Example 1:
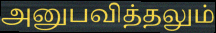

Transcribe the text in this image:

அனுபவித்தலும்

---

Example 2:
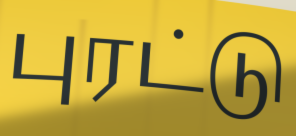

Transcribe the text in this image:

புரட்டு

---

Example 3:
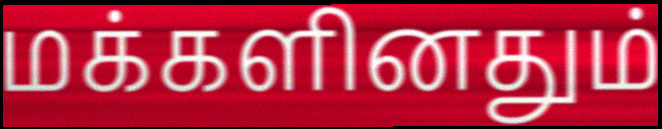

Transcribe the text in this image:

மக்களினதும்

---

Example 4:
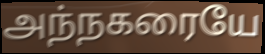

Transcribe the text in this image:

அந்நகரையே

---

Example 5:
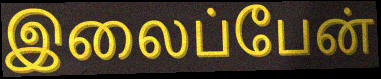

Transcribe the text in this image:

இலைப்பேன்